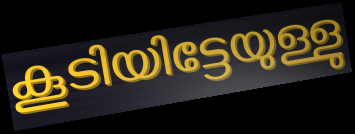
കൂടിയിട്ടേയുള്ളു